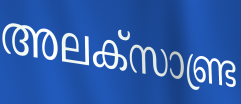
അലക്സാണ്ട്ര